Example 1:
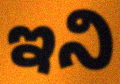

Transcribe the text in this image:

ఇని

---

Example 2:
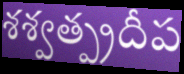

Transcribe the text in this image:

శశ్వత్ప్రదీప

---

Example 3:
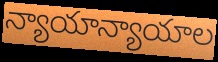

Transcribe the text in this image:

న్యాయాన్యాయాల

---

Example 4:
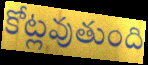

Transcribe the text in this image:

కోట్లవుతుంది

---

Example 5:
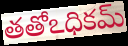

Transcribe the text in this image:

తతోఽధికమ్